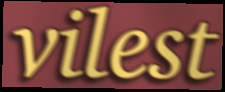
vilest